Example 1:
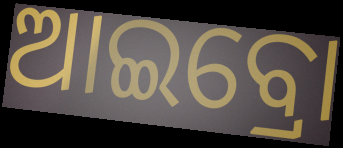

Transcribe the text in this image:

ଆଇବ୍ରୋ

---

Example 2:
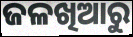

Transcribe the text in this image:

ଜଳଖିଆରୁ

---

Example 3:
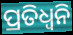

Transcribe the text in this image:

ପ୍ରତିଧ୍ବନି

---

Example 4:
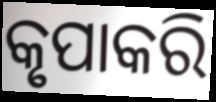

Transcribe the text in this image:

କୃପାକରି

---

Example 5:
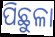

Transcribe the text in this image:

ପିଛୁଳା